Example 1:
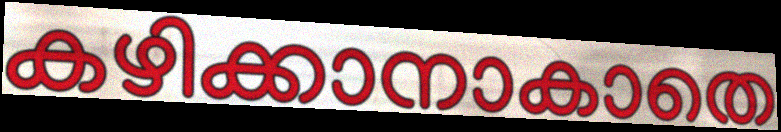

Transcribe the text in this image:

കഴിക്കാനാകാതെ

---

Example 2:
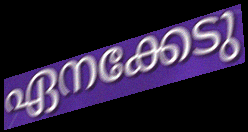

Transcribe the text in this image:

ഏനക്കേടു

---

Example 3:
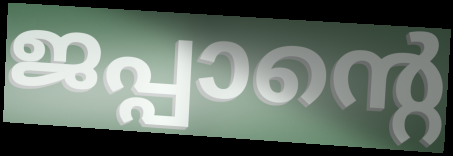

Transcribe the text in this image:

ജപ്പാന്റെ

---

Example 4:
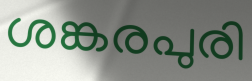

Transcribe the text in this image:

ശങ്കരപുരി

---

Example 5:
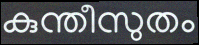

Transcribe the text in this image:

കുന്തീസുതം